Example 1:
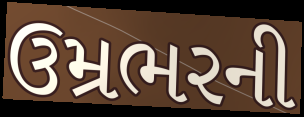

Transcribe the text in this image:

ઉમ્રભરની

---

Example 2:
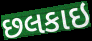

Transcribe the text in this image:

છલકાઇ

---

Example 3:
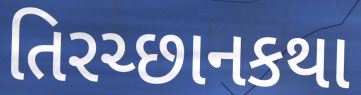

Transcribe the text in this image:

તિરચ્છાનકથા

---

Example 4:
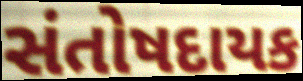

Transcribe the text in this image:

સંતોષદાયક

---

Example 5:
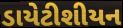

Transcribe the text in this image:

ડાયેટીશીયન